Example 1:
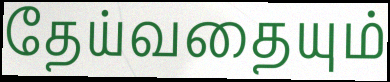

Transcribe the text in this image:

தேய்வதையும்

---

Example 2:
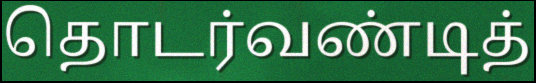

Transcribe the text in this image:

தொடர்வண்டித்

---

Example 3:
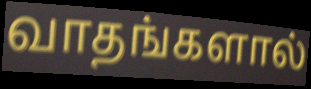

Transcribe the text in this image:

வாதங்களால்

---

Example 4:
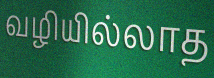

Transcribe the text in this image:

வழியில்லாத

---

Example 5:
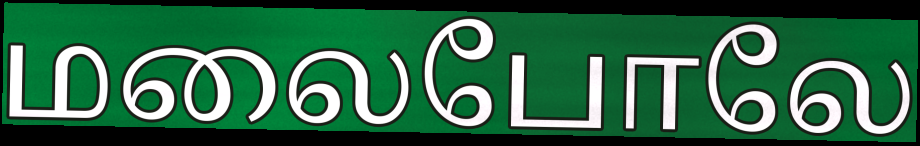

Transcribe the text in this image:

மலைபோலே